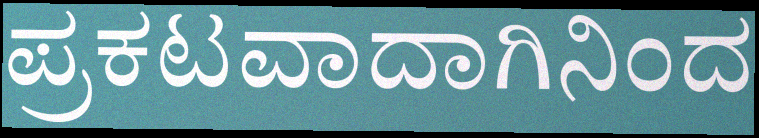
ಪ್ರಕಟವಾದಾಗಿನಿಂದ